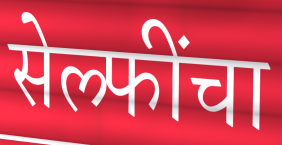
सेल्फींचा